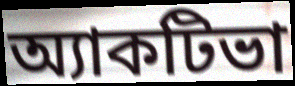
অ্যাকটিভা